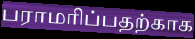
பராமரிப்பதற்காக